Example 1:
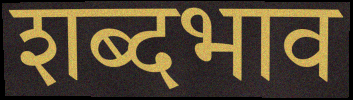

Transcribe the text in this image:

शब्दभाव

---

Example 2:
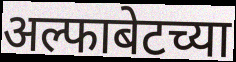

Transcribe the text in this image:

अल्फाबेटच्या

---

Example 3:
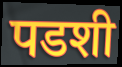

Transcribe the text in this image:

पडशी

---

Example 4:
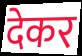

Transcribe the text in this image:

देकर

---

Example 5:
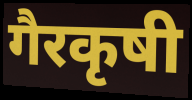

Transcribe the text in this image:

गैरकृषी